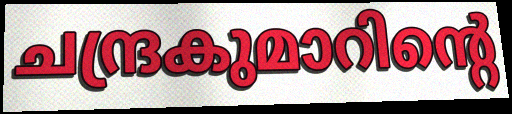
ചന്ദ്രകുമാറിന്റെ